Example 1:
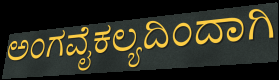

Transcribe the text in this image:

ಅಂಗವೈಕಲ್ಯದಿಂದಾಗಿ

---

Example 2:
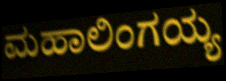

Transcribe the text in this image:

ಮಹಾಲಿಂಗಯ್ಯ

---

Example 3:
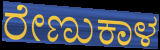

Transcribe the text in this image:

ರೇಣುಕಾಳ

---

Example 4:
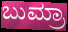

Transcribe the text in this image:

ಬುಮ್ರಾ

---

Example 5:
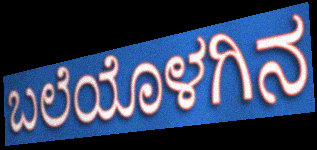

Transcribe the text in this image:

ಬಲೆಯೊಳಗಿನ